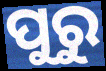
ପୁରୁ